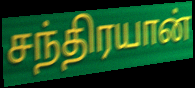
சந்திரயான்